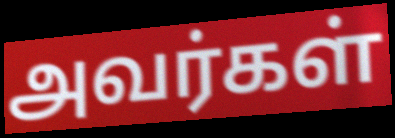
அவர்கள்